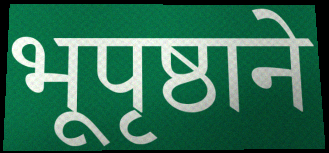
भूपृष्ठाने